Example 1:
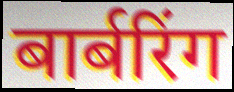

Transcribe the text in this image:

बार्बरिंग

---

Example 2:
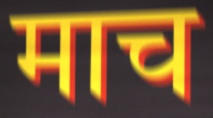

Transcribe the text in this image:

माच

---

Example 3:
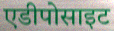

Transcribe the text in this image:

एडीपोसाइट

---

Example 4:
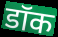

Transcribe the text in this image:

डॉक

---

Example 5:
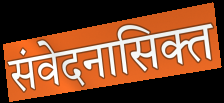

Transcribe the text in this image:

संवेदनासिक्त